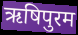
ऋषिपुरम